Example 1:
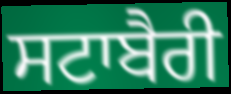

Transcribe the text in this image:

ਸਟਾਬੈਰੀ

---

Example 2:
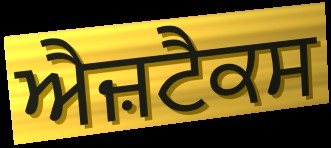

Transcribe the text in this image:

ਐਜ਼ਟੈਕਸ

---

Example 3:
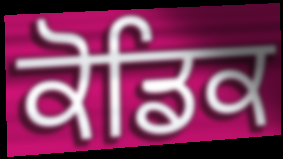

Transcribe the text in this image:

ਕੋਡਿਕ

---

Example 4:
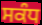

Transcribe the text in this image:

ਸਕੰਧ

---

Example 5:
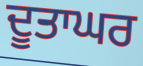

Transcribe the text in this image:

ਦੂਤਾਘਰ